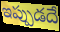
ఇప్పుడదే